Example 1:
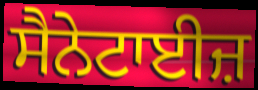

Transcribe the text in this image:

ਸੈਨੇਟਾਈਜ਼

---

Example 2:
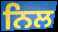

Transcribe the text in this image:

ਨਿਲ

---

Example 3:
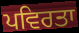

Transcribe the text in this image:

ਪਵਿਰਤਾ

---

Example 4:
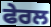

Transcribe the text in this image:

ਫੇਰਲ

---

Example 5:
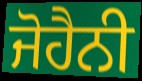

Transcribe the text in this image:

ਜੋਹੈਨੀ